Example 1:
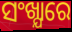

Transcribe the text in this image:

ସଂଖ୍ଯାରେ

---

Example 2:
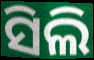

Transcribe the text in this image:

ସିଲି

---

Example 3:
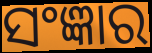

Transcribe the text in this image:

ସଂଜ୍ଞାର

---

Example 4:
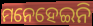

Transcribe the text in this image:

ମନେହେଇନି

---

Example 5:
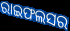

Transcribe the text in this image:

ରାଇଫଲସର